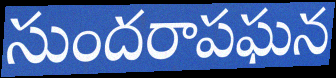
సుందరాపఘన